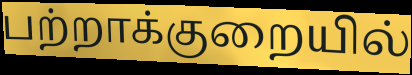
பற்றாக்குறையில்